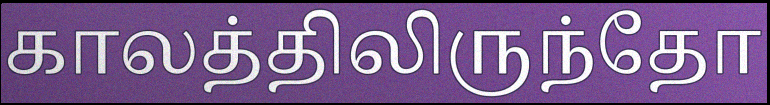
காலத்திலிருந்தோ